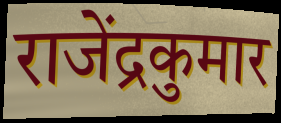
राजेंद्रकुमार